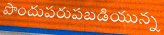
పొందుపరుపబడియున్న